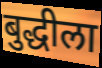
बुद्धीला